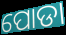
ପୋଡା